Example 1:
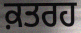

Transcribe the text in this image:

ਕ਼ਤਰਹ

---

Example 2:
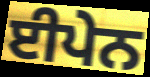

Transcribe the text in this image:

ਈਪੇਨ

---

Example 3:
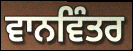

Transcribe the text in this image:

ਵਾਨਵਿੰਤਰ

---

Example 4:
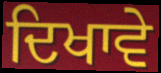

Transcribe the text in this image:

ਦਿਖਾਵੇ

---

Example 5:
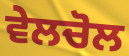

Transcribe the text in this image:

ਵੇਲਚੋਲ